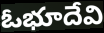
ఓభూదేవి